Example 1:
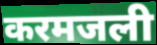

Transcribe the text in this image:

करमजली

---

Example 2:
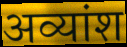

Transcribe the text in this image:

अव्यांश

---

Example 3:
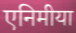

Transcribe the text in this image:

एनिमीया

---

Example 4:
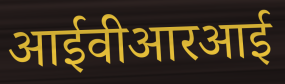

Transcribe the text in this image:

आईवीआरआई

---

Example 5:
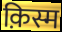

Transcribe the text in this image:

क़िस्‍म